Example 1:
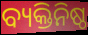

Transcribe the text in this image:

ବ୍ୟକ୍ତିନିଷ୍ଠ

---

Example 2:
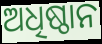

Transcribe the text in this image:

ଅଧିଷ୍ଠାନ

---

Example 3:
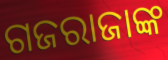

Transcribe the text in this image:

ଗଜରାଜାଙ୍କ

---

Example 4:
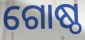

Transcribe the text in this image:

ଗୋଷ୍ଠ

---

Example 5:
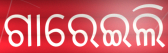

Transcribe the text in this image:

ଗାରେଇଲି